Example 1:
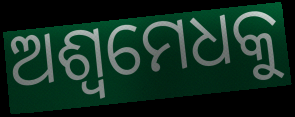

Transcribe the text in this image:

ଅଶ୍ୱମେଧକୁ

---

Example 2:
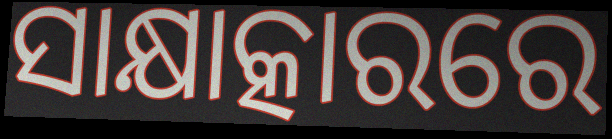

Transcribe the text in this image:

ସାକ୍ଷାତ୍କାରରେ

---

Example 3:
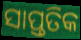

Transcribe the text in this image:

ସାପ୍ତତିକ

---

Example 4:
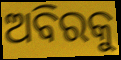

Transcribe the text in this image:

ଅବିରକୁ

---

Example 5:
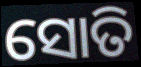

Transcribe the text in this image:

ସୋତି